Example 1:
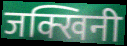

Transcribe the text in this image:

जक्खिनी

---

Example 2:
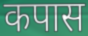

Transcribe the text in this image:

कपास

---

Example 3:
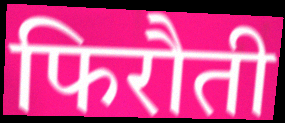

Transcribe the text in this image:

फिरौती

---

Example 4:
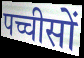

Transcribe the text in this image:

पच्चीसों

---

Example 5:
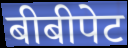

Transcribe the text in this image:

बीबीपेट